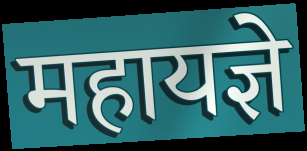
महायज्ञे